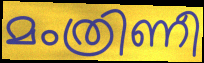
മംത്രിണീ